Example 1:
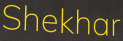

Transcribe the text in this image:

Shekhar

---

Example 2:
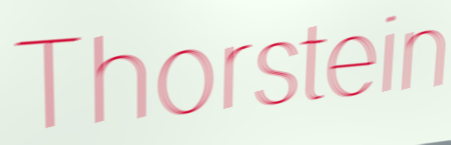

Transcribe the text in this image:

Thorstein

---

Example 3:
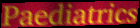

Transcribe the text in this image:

Paediatrics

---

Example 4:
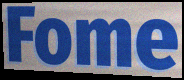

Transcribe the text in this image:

Fome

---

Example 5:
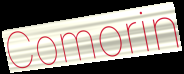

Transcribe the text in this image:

Comorin